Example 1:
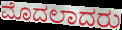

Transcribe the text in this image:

ಮೊದಲಾದರು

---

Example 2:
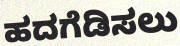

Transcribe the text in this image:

ಹದಗೆಡಿಸಲು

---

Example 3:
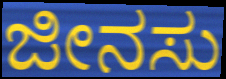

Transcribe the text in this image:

ಜೀನಸು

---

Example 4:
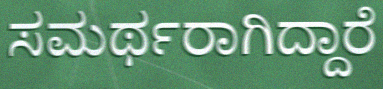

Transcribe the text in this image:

ಸಮರ್ಥರಾಗಿದ್ದಾರೆ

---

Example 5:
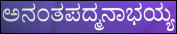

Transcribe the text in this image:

ಅನಂತಪದ್ಮನಾಭಯ್ಯ